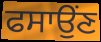
ਫਸਾਉਂਣ